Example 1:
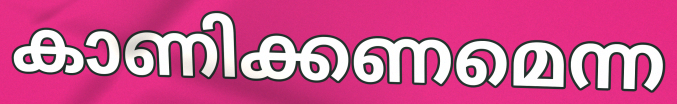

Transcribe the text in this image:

കാണിക്കണമെന്ന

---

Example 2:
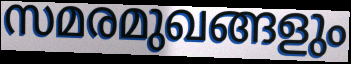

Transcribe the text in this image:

സമരമുഖങ്ങളും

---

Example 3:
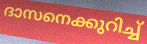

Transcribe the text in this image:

ദാസനെക്കുറിച്ച്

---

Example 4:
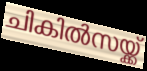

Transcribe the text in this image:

ചികിൽസയ്ക്ക്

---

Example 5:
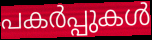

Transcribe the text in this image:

പകർപ്പുകൾ